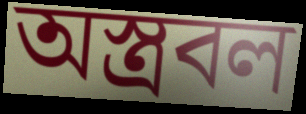
অস্ত্রবল